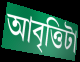
আবৃত্তিটা